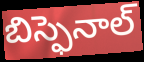
బిస్ఫెనాల్